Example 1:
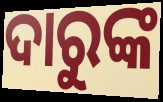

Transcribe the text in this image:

ଦାରୁଙ୍କ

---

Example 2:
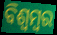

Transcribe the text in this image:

ବିଶ୍ଵମ୍ବର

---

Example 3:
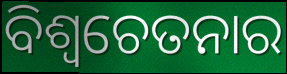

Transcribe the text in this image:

ବିଶ୍ଵଚେତନାର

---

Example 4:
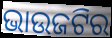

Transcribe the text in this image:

ଭାଉଜଟିର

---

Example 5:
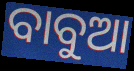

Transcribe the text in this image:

ବାବୁଆ